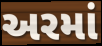
અરમાં